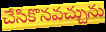
చేసికొనవచ్చును